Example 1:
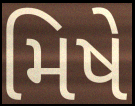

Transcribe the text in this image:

મિષે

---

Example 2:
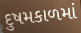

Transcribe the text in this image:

દુષમકાળમાં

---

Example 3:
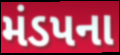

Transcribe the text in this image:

મંડપના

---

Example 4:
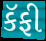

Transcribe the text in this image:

કૅફી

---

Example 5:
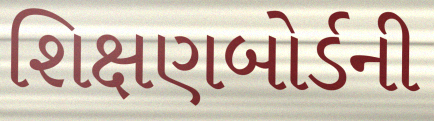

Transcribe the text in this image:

શિક્ષણબોર્ડની